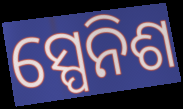
ସ୍ପେନିଶ